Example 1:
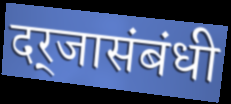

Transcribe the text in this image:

दर्जासंबंधी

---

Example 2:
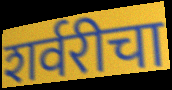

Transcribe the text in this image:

शर्वरीचा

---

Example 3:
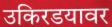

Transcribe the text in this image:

उकिरडयावर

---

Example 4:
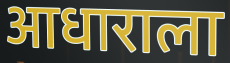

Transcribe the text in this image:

आधाराला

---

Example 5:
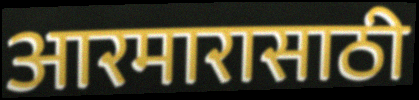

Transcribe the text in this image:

आरमारासाठी